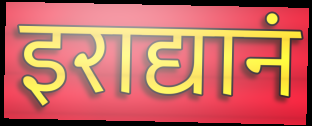
इराद्यानं